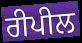
ਰੀਪੀਲ